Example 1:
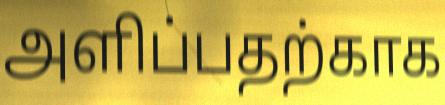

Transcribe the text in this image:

அளிப்பதற்காக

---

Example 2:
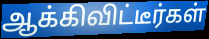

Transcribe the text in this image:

ஆக்கிவிட்டீர்கள்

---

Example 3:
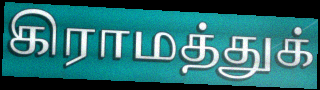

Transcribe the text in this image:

கிராமத்துக்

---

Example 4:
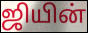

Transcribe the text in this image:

ஜியின்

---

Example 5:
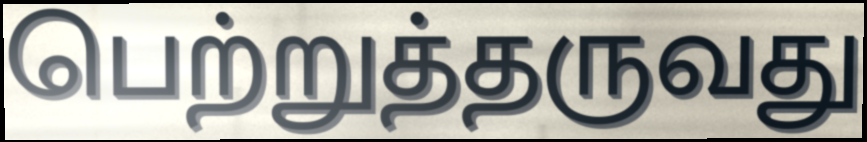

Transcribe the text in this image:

பெற்றுத்தருவது